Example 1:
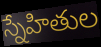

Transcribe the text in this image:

స్నేహితుల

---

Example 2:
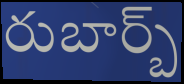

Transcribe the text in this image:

రుబార్బ్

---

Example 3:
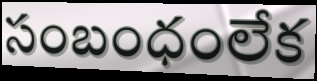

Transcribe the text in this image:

సంబంధంలేక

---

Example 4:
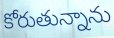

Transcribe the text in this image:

కోరుతున్నాను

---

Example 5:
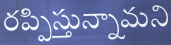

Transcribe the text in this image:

రప్పిస్తున్నామని